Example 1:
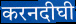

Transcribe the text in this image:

करनदीघी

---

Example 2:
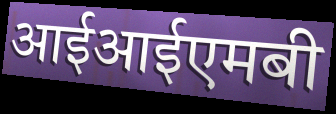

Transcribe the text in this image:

आईआईएमबी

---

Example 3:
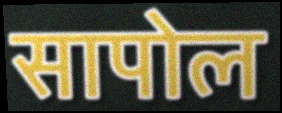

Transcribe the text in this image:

सापोल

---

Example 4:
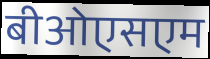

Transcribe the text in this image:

बीओएसएम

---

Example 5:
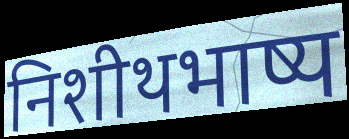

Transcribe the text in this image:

निशीथभाष्य